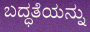
ಬದ್ಧತೆಯನ್ನು